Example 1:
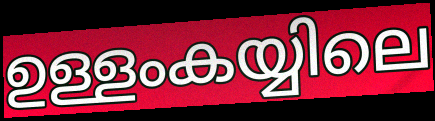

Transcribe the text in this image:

ഉള്ളംകയ്യിലെ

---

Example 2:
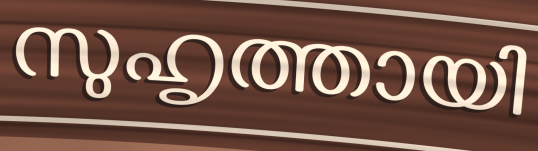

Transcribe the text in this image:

സുഹൃത്തായി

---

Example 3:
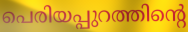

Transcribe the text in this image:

പെരിയപ്പുറത്തിന്റെ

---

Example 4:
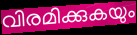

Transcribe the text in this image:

വിരമിക്കുകയും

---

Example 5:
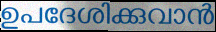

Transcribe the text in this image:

ഉപദേശിക്കുവാൻ